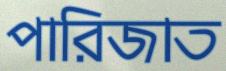
পারিজাত